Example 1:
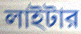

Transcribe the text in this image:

লাইটার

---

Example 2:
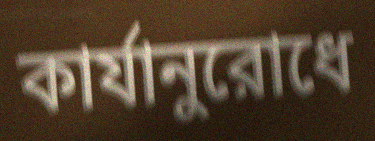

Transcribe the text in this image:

কার্যানুরোধে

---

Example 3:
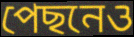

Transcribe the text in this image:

পেছনেও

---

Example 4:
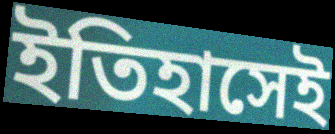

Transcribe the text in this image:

ইতিহাসেই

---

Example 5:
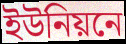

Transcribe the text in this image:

ইউনিয়নে